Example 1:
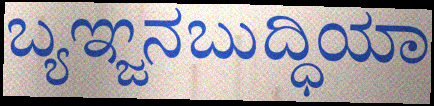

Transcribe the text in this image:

ಬ್ಯಞ್ಜನಬುದ್ಧಿಯಾ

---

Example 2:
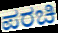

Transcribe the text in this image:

ಪರಚಿ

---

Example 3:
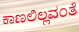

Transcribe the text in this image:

ಕಾಣಲಿಲ್ಲವಂತೆ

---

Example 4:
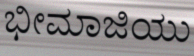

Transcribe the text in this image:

ಭೀಮಾಜಿಯು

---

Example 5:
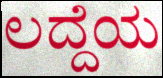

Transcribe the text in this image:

ಲದ್ದೆಯ